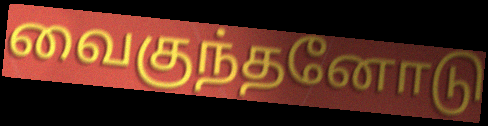
வைகுந்தனோடு